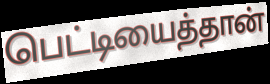
பெட்டியைத்தான்